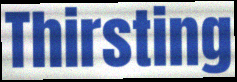
Thirsting